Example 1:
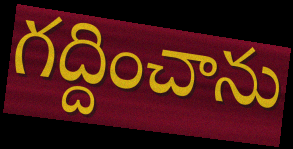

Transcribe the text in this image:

గద్దించాను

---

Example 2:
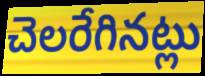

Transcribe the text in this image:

చెలరేగినట్లు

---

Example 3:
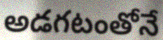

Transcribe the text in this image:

అడగటంతోనే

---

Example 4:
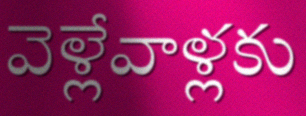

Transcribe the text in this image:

వెళ్లేవాళ్లకు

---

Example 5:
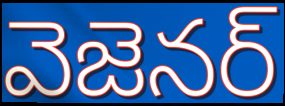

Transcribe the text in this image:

వెజెనర్